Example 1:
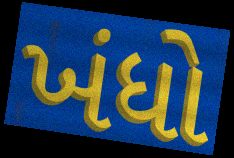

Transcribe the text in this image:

ખંધો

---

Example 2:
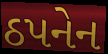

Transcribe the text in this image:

ઠપનેન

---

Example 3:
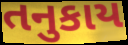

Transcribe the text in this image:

તનુકાય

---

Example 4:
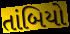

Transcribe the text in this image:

તાંબિયો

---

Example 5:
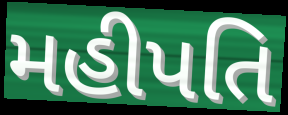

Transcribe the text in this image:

મહીપતિ